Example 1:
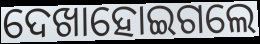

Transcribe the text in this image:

ଦେଖାହୋଇଗଲେ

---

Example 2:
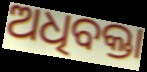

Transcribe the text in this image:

ଅଧିବକ୍ତା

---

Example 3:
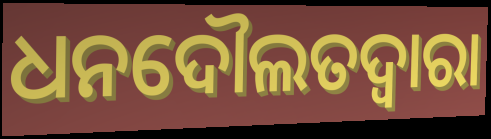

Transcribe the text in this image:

ଧନଦୌଲତଦ୍ଵାରା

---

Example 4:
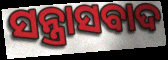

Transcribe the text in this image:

ସନ୍ତ୍ରାସବାଦ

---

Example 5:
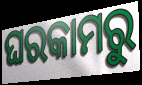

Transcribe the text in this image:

ଘରକାମରୁ